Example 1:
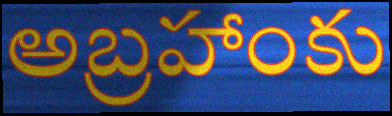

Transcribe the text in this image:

అబ్రహాంకు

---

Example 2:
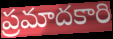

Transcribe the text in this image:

ప్రమాదకారి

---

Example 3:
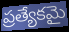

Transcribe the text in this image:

ప్రత్యేకమై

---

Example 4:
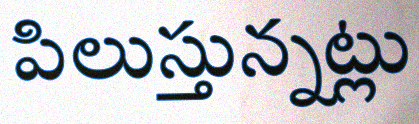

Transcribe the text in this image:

పిలుస్తున్నట్లు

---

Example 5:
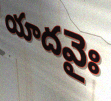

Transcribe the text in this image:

యాదవైః